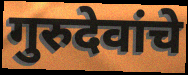
गुरुदेवांचे